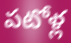
పటోళ్ల